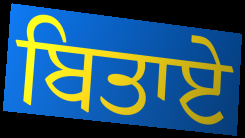
ਬਿਤਾਏ